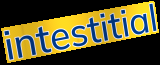
intestitial